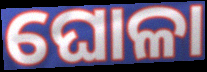
ଘୋଳା